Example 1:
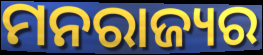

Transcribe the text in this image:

ମନରାଜ୍ୟର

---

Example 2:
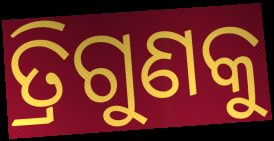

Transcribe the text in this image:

ତ୍ରିଗୁଣକୁ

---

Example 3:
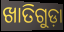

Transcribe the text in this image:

ଖାତିଗୁଡ଼ା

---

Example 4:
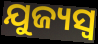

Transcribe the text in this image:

ଯୁଜ୍ୟସ୍ୱ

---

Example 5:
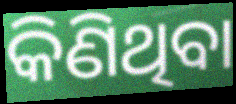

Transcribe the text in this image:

କିଣିଥିବା